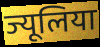
ज्यूलिया